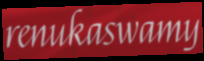
renukaswamy